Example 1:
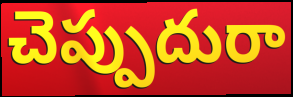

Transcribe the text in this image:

చెప్పుదురా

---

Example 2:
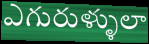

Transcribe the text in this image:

ఎగురుళ్ళులా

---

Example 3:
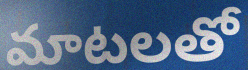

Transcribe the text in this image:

మాటలతో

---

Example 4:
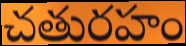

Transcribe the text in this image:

చతురహం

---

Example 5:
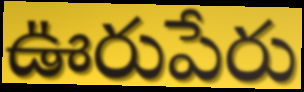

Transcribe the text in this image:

ఊరుపేరు